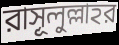
রাসূলুল্লাহর